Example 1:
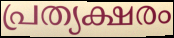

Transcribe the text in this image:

പ്രത്യക്ഷരം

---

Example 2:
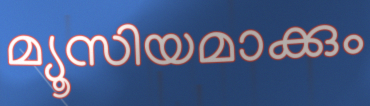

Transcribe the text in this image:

മ്യൂസിയമാക്കും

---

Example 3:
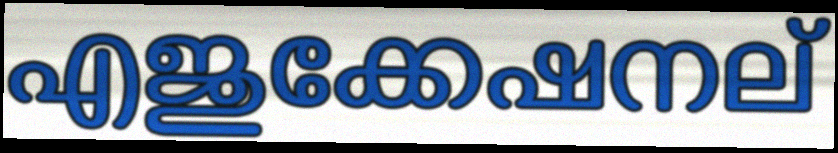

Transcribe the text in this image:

എജുക്കേഷനല്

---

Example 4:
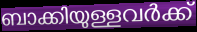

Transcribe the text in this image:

ബാക്കിയുള്ളവർക്ക്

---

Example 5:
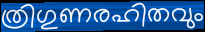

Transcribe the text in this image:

ത്രിഗുണരഹിതവും